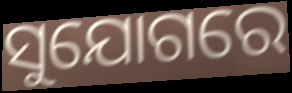
ସୁଯୋଗରେ